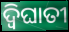
ଦ୍ବିଘାତୀ